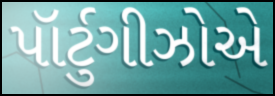
પૉર્ટુગીઝોએ